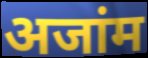
अजांम